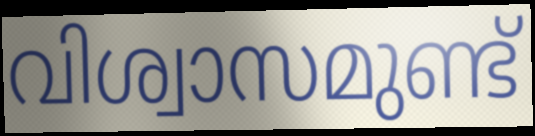
വിശ്വാസമുണ്ട്